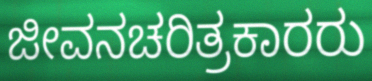
ಜೀವನಚರಿತ್ರಕಾರರು